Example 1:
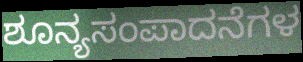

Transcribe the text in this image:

ಶೂನ್ಯಸಂಪಾದನೆಗಳ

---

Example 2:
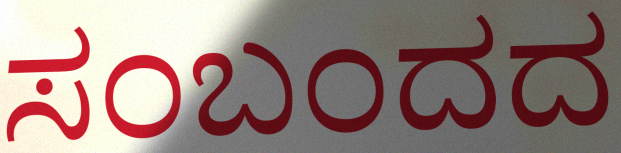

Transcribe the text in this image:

ಸಂಬಂದದ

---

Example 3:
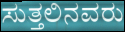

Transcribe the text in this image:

ಸುತ್ತಲಿನವರು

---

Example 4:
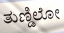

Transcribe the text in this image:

ತುಣ್ಡಿಲೋ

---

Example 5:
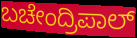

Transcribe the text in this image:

ಬಚೇಂದ್ರಿಪಾಲ್